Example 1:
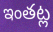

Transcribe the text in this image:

ఇంతట్ల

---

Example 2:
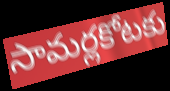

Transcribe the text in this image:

సామర్లకోటకు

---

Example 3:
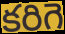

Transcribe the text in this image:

కరిగె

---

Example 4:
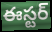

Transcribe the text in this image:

ఈస్టర్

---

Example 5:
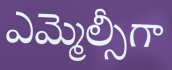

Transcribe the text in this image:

ఎమ్మెల్సీగా